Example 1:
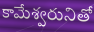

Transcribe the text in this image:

కామేశ్వరునితో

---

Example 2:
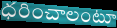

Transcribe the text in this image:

ధరించాలంటూ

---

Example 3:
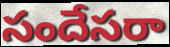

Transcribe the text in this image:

సందేసరా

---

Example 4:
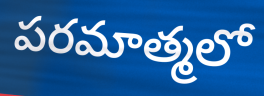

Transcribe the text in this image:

పరమాత్మలో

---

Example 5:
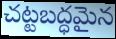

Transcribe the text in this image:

చట్టబద్ధమైన